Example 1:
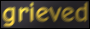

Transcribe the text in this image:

grieved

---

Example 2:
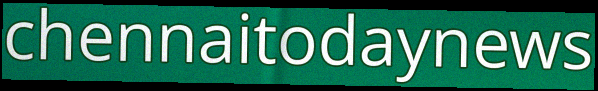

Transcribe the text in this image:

chennaitodaynews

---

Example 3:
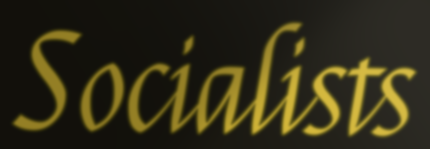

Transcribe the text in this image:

Socialists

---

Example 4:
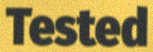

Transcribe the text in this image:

Tested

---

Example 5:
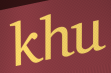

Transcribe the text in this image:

khu